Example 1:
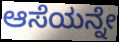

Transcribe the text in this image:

ಆಸೆಯನ್ನೇ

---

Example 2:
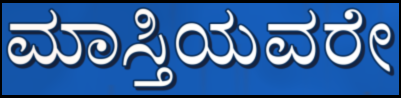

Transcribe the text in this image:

ಮಾಸ್ತಿಯವರೇ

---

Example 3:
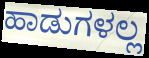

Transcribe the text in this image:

ಹಾಡುಗಳಲ್ಲ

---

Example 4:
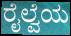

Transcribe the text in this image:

ರೈಲ್ವೆಯ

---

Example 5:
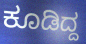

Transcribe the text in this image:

ಕೂಡಿದ್ದ